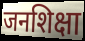
जनशिक्षा